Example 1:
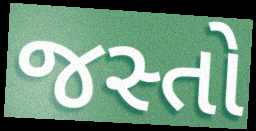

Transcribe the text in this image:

જસ્તો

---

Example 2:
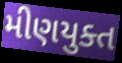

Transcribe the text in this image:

મીણયુક્ત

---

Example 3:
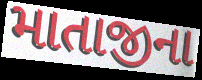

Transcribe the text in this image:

માતાજીના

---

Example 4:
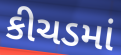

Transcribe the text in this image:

કીચડમાં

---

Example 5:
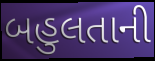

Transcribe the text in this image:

બહુલતાની